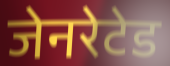
जेनरेटेड